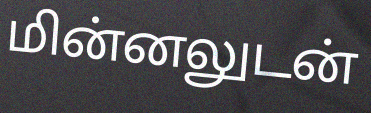
மின்னலுடன்